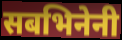
सबभिनेनी